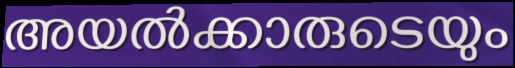
അയൽക്കാരുടെയും